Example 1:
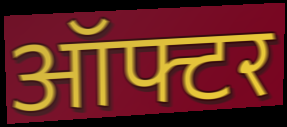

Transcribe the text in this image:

ऑफ्टर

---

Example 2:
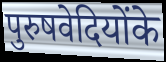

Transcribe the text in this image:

पुरुषवेदियोंके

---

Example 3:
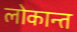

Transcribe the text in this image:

लोकान्त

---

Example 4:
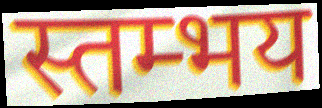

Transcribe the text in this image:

स्तम्भय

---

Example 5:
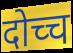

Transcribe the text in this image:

दोच्च